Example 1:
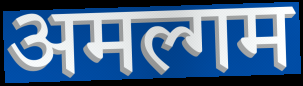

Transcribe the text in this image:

अमल्गम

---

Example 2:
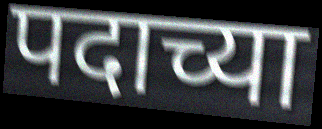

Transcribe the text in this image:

पदाच्या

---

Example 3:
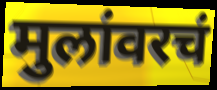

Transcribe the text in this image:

मुलांवरचं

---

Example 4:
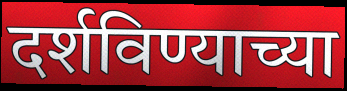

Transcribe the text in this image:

दर्शविण्याच्या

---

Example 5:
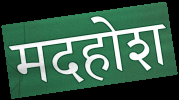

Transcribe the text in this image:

मदहोश